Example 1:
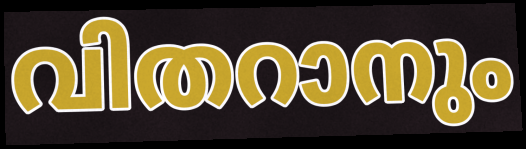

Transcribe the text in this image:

വിതറാനും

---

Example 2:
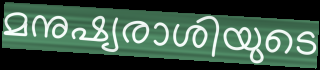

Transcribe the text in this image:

മനുഷ്യരാശിയുടെ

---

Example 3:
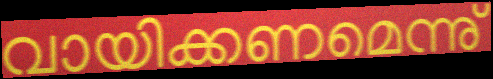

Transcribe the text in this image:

വായിക്കണമെന്നു്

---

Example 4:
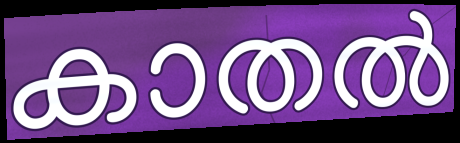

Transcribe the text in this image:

കാതൽ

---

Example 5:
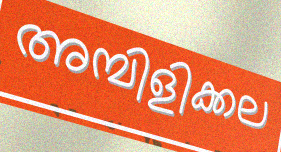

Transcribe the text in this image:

അമ്പിളിക്കല